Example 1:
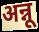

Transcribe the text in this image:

अन्नू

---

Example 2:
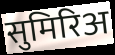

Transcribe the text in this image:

सुमिरिअ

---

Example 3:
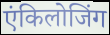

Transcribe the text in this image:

एंकिलोजिंग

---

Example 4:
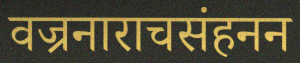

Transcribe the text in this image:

वज्रनाराचसंहनन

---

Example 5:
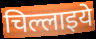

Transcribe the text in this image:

चिल्लाइये